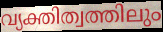
വ്യക്തിത്വത്തിലും